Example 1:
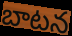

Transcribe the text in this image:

బాటన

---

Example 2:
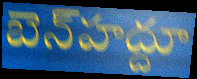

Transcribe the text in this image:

బెన్‍హద్దూ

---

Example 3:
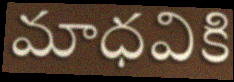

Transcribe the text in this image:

మాధవికి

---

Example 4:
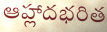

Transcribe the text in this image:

ఆహ్లాదభరిత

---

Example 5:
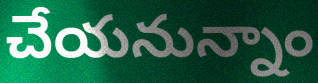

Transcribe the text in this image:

చేయనున్నాం